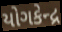
યોગકેન્દ્ર